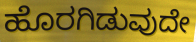
ಹೊರಗಿಡುವುದೇ